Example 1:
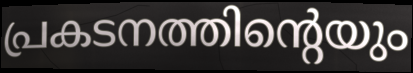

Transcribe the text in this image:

പ്രകടനത്തിന്റെയും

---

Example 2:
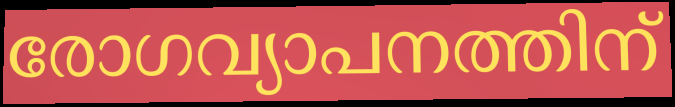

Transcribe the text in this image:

രോഗവ്യാപനത്തിന്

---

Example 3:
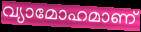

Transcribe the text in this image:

വ്യാമോഹമാണ്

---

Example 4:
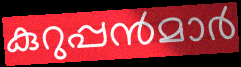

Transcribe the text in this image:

കുറുപ്പൻമാർ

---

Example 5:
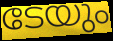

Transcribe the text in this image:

ടേയും